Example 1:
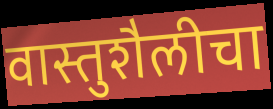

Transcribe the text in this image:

वास्तुशैलीचा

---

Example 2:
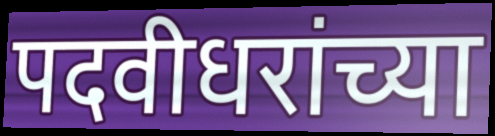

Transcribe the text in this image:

पदवीधरांच्या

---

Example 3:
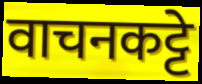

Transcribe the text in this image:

वाचनकट्टे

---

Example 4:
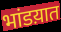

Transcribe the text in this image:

भांडय़ात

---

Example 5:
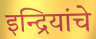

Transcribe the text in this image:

इन्द्रियांचे